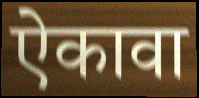
ऐकावा